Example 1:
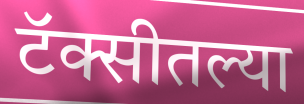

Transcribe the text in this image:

टॅक्सीतल्या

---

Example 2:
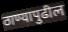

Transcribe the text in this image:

ठाण्यापुढील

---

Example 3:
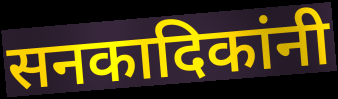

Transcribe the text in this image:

सनकादिकांनी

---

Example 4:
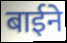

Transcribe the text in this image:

बाईने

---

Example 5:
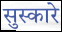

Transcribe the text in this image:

सुस्कारे